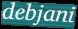
debjani